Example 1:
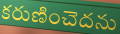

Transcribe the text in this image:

కరుణించెదను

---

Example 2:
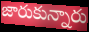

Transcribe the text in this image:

జారుకున్నారు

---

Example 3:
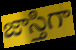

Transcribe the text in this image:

జాస్తిగా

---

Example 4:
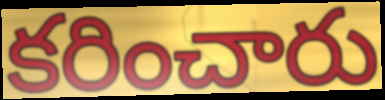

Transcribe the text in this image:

కరించారు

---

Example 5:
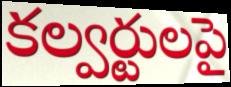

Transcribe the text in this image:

కల్వర్టులపై